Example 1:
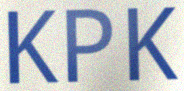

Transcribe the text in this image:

KPK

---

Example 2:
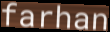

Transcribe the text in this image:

farhan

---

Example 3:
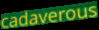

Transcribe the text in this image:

cadaverous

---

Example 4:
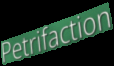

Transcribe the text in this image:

Petrifaction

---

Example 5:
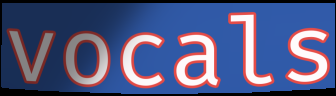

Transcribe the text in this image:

vocals